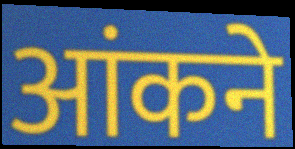
आंकने